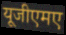
यूजीएमए